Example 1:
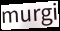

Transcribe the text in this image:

murgi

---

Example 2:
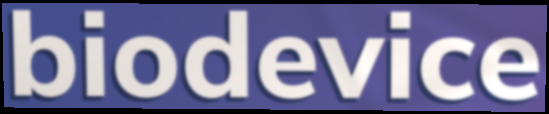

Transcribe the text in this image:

biodevice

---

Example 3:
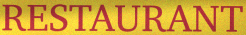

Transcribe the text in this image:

RESTAURANT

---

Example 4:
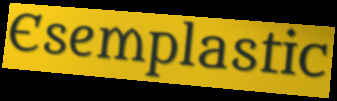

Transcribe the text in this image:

Esemplastic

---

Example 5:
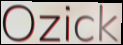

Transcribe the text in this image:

Ozick